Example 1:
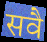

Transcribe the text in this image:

सवै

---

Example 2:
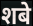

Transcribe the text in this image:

शबे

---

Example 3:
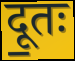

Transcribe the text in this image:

दू॒तः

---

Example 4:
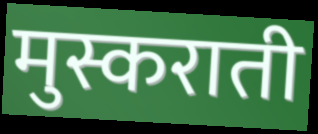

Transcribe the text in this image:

मुस्कराती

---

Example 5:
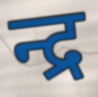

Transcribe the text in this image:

न्द्र